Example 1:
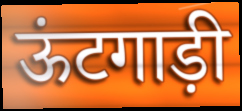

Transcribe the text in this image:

ऊंटगाड़ी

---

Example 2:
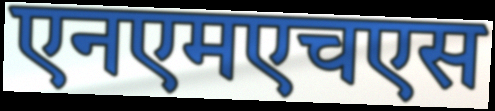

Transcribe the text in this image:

एनएमएचएस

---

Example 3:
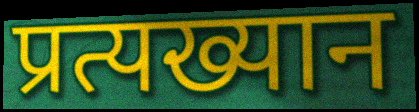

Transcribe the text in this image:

प्रत्यख्यान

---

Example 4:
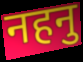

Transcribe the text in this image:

नहनु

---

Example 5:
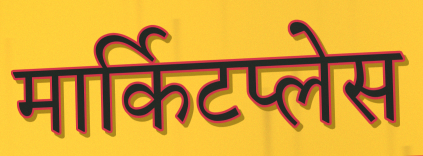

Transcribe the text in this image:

मार्किटप्लेस